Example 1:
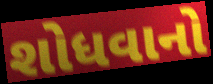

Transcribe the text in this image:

શોધવાનો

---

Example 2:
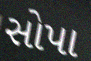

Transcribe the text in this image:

સોપા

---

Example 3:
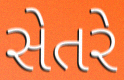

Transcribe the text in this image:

સેતરે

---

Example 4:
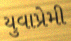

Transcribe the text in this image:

યુવાપ્રેમી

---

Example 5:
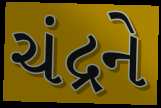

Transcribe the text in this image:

ચંદ્રને